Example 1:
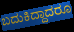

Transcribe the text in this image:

ಬದುಕಿದ್ದಾದರೂ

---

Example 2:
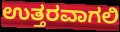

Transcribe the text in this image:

ಉತ್ತರವಾಗಲಿ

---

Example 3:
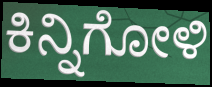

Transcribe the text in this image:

ಕಿನ್ನಿಗೋಳಿ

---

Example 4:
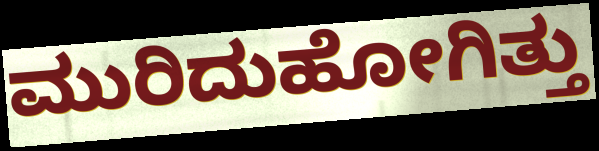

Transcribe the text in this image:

ಮುರಿದುಹೋಗಿತ್ತು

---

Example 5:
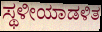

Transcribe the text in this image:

ಸ್ಥಳೀಯಾಡಳಿತ